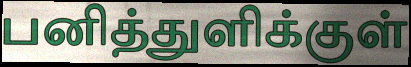
பனித்துளிக்குள்